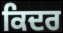
ਕਿਦਰ